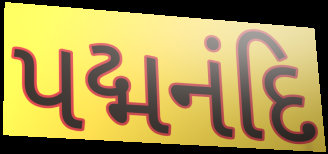
પદ્મનંદિ